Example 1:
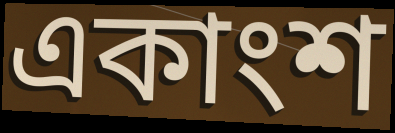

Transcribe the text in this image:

একাংশ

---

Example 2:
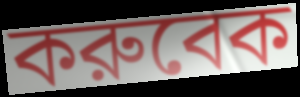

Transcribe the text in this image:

করুবেক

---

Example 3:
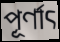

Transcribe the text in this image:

পূর্ণাৎ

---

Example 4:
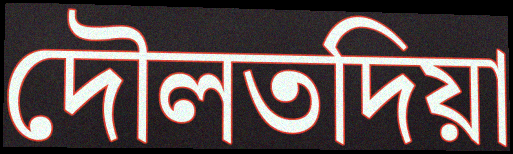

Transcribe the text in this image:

দৌলতদিয়া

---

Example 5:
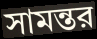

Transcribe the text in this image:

সামন্তর